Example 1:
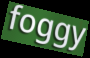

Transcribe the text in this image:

foggy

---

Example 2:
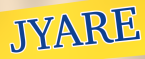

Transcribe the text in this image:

JYARE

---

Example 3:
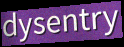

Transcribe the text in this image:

dysentry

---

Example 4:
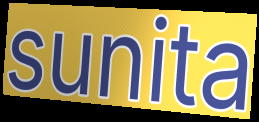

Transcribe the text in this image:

sunita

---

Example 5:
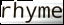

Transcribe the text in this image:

rhyme